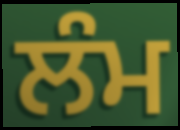
ਲੰਮ